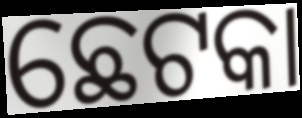
ଛେଟକା